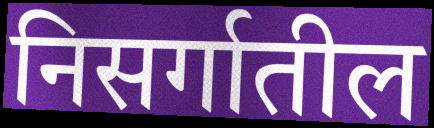
निसर्गातील